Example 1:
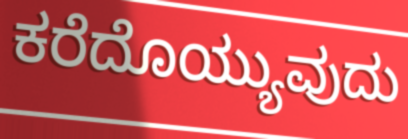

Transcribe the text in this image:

ಕರೆದೊಯ್ಯುವುದು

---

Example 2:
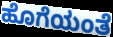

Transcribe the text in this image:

ಹೊಗೆಯಂತೆ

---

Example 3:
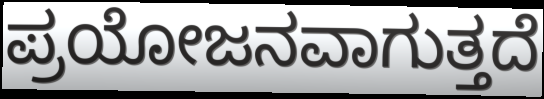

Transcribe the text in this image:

ಪ್ರಯೋಜನವಾಗುತ್ತದೆ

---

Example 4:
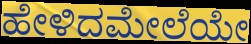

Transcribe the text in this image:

ಹೇಳಿದಮೇಲೆಯೇ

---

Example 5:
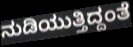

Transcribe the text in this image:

ನುಡಿಯುತ್ತಿದ್ದಂತೆ